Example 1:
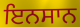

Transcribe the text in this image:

ਇਨਸਾਨ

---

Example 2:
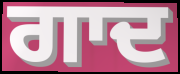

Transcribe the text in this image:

ਗਾਦ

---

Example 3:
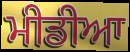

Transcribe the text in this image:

ਮੀਡੀਆ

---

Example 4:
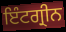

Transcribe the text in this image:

ਇੰਟਗ੍ਰੀਨ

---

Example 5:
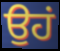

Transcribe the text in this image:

ਉਹਂ